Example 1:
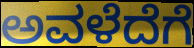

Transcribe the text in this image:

ಅವಳೆದೆಗೆ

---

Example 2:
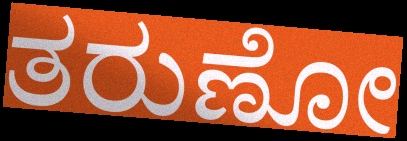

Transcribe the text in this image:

ತರುಣೋ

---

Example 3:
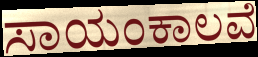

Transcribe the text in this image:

ಸಾಯಂಕಾಲವೆ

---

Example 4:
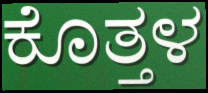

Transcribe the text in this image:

ಕೊತ್ತಳ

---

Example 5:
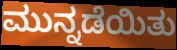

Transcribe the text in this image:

ಮುನ್ನಡೆಯಿತು